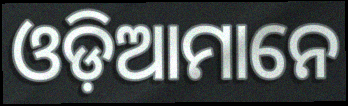
ଓଡ଼ିଆମାନେ